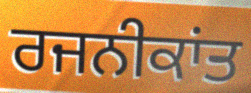
ਰਜਨੀਕਾਂਤ